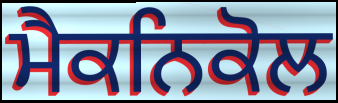
ਮੈਕਨਿਕੋਲ